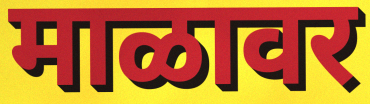
माळावर